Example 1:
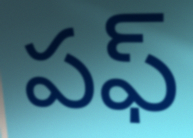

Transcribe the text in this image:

పఫ్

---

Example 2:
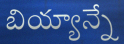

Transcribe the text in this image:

బియ్యాన్నే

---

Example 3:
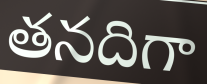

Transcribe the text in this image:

తనదిగా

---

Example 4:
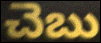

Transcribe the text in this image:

చెబు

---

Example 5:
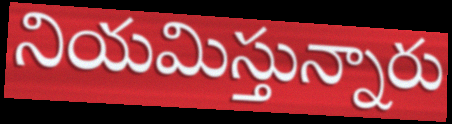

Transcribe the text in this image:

నియమిస్తున్నారు